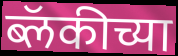
ब्लॅकीच्या